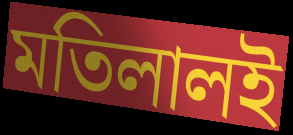
মতিলালই